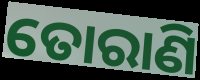
ତୋରାଣି